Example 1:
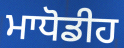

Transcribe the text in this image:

ਮਾਧੋਡੀਹ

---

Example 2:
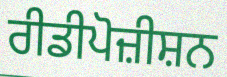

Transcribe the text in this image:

ਰੀਡੀਪੋਜ਼ੀਸ਼ਨ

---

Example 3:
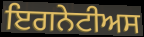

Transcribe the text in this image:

ਇਗਨੇਟੀਅਸ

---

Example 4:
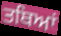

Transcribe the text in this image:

ਤਥਿਆਂ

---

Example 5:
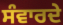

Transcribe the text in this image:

ਸੰਵਾਰਦੇ